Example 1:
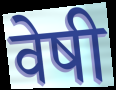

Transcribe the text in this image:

वेषी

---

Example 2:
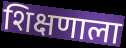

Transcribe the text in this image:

शिक्षणाला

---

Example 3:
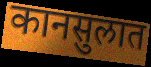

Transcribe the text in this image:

कानसुलात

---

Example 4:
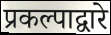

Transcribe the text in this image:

प्रकल्पाद्वारे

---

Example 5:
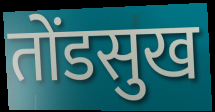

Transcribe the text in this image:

तोंडसुख